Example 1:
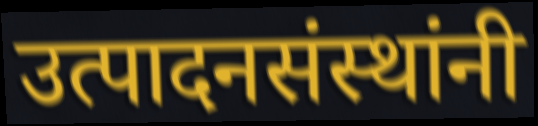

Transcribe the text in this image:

उत्पादनसंस्थांनी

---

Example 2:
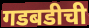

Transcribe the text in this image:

गडबडीची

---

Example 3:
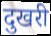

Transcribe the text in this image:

दुखरी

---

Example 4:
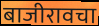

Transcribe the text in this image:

बाजीरावचा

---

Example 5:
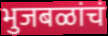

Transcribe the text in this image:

भुजबळांचं